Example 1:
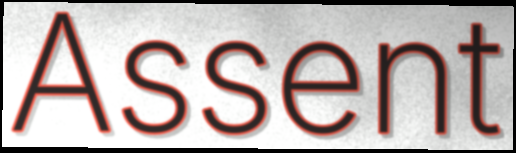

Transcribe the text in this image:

Assent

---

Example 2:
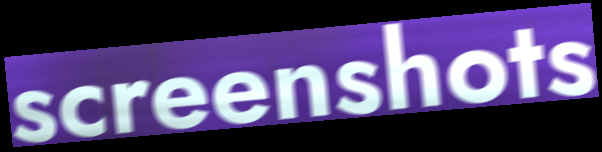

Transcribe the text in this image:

screenshots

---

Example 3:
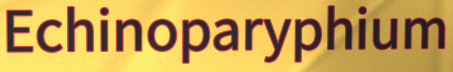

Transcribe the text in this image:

Echinoparyphium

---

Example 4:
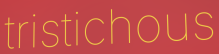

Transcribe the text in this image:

tristichous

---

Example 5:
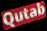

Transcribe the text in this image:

Qutab